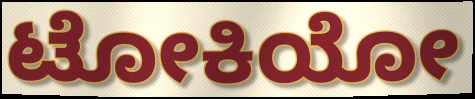
ಟೋಕಿಯೋ